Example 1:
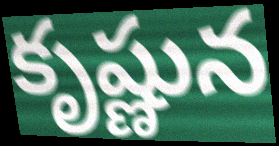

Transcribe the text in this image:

కృష్ణున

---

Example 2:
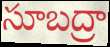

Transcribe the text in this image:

సూబద్రా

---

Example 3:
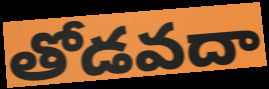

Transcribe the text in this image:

తోడవదా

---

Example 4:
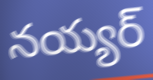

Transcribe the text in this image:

నయ్యర్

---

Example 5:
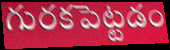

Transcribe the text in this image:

గురకపెట్టడం